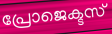
പ്രോജെക്ടസ്